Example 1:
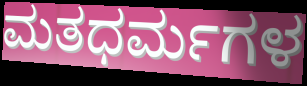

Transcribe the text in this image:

ಮತಧರ್ಮಗಳ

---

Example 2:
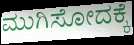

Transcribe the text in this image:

ಮುಗಿಸೋದಕ್ಕೆ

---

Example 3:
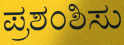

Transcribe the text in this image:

ಪ್ರಶಂಶಿಸು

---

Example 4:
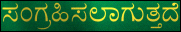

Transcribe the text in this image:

ಸಂಗ್ರಹಿಸಲಾಗುತ್ತದೆ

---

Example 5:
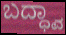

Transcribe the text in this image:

ಬದ್ಧ್ವಾ